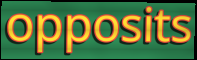
opposits